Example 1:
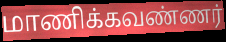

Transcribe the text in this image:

மாணிக்கவண்ணர்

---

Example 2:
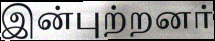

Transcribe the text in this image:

இன்புற்றனர்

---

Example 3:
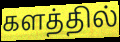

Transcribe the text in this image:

களத்தில்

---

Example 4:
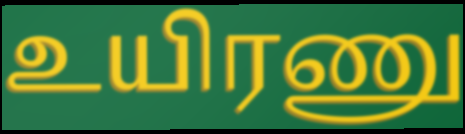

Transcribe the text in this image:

உயிரணு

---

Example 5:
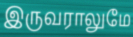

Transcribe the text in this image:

இருவராலுமே